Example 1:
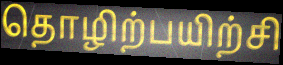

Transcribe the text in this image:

தொழிற்பயிற்சி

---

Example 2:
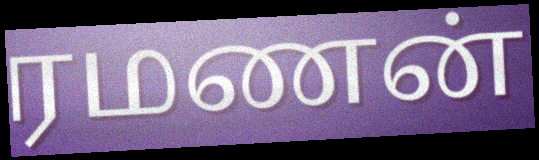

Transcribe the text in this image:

ரமணன்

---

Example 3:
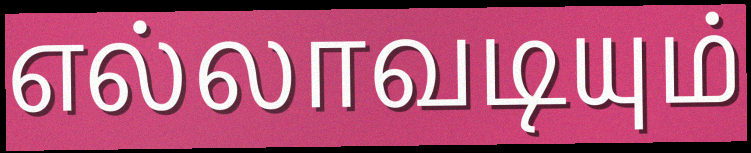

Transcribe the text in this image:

எல்லாவடியும்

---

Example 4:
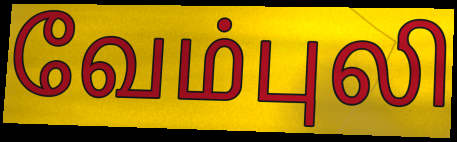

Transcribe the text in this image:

வேம்புலி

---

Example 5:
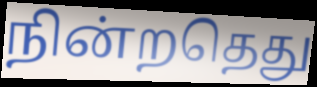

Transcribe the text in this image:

நின்றதெது